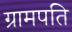
ग्रामपति